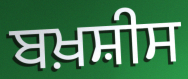
ਬਖ਼ਸ਼ੀਸ